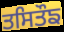
ਤਸਿਤੌਙ